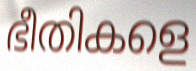
ഭീതികളെ